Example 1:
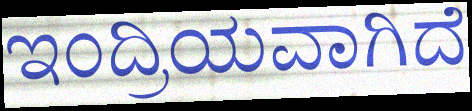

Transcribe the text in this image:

ಇಂದ್ರಿಯವಾಗಿದೆ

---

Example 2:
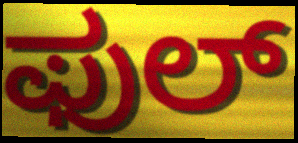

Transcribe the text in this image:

ಫುಲ್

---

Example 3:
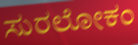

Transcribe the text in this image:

ಸುರಲೋಕಂ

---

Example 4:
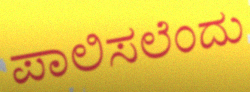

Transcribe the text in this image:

ಪಾಲಿಸಲೆಂದು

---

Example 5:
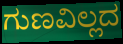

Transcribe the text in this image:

ಗುಣವಿಲ್ಲದ